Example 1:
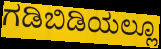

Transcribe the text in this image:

ಗಡಿಬಿಡಿಯಲ್ಲೂ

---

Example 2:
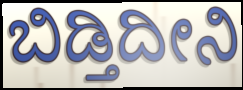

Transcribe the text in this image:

ಬಿಡ್ತಿದೀನಿ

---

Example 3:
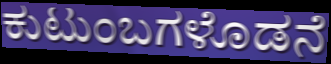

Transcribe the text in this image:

ಕುಟುಂಬಗಳೊಡನೆ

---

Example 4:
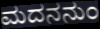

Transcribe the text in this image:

ಮದನನುಂ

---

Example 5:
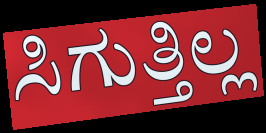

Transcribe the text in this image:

ಸಿಗುತ್ತಿಲ್ಲ